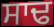
ਸਾਢ